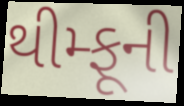
થીમ્ફૂની